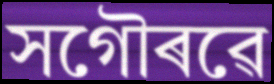
সগৌৰৱে